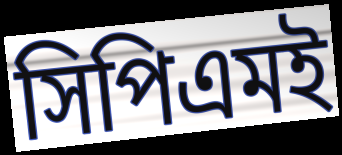
সিপিএমই